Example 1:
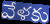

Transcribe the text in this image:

వేళకు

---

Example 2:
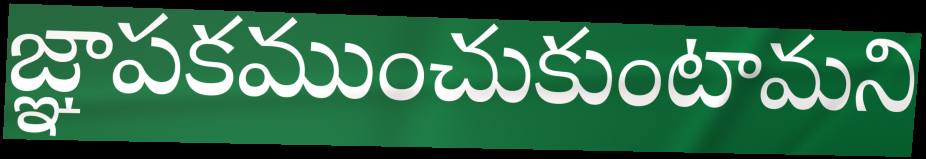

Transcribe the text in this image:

జ్ఞాపకముంచుకుంటామని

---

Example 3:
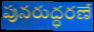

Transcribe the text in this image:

పునరుద్ధరణే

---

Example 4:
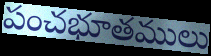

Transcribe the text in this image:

పంచభూతములు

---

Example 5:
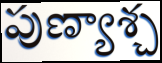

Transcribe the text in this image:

పుణ్యాశ్చ